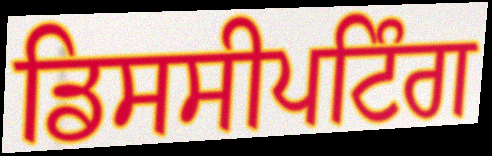
ਡਿਸਸੀਪਟਿੰਗ